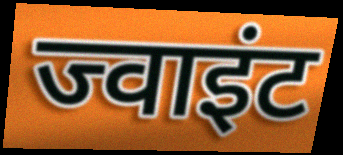
ज्वाइंट